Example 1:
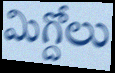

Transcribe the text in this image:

మిగ్దోలు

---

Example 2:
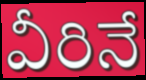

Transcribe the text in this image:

వీరినే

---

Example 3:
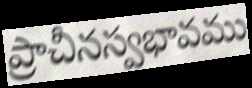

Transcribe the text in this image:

ప్రాచీనస్వభావము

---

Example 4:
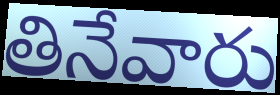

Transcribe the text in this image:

తినేవారు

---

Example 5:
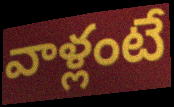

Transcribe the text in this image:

వాళ్లంటే